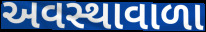
અવસ્થાવાળા